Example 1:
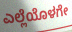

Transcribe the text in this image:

ಎಲ್ಲೆಯೊಳಗೇ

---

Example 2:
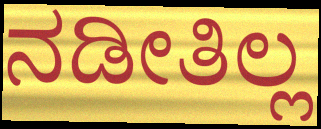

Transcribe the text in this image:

ನಡೀತಿಲ್ಲ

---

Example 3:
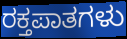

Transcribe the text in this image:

ರಕ್ತಪಾತಗಳು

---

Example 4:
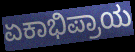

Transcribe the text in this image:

ಏಕಾಭಿಪ್ರಾಯ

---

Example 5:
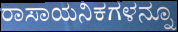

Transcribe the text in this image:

ರಾಸಾಯನಿಕಗಳನ್ನೂ